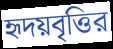
হৃদয়বৃত্তির